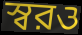
স্বরও